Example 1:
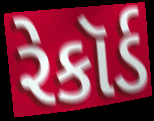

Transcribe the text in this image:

રેકૉર્ડ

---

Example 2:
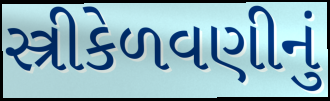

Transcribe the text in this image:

સ્ત્રીકેળવણીનું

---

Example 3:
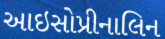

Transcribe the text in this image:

આઇસોપ્રીનાલિન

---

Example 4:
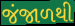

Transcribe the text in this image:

જંજાળથી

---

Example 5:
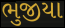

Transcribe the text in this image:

ભુજીયા